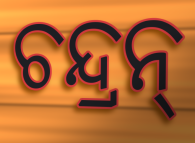
ଚନ୍ଦ୍ରନ୍